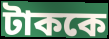
টাককে